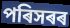
পৰিসৰৰ